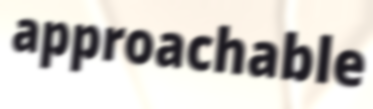
approachable